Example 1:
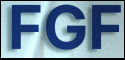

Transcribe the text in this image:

FGF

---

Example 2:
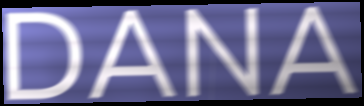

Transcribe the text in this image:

DANA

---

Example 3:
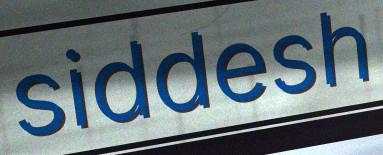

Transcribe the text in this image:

siddesh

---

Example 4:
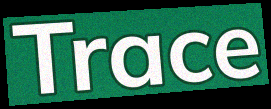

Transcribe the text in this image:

Trace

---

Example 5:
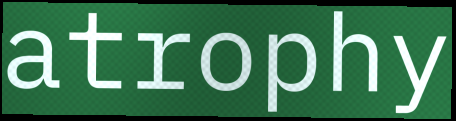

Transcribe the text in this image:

atrophy